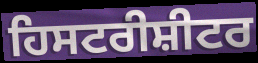
ਹਿਸਟਰੀਸ਼ੀਟਰ